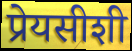
प्रेयसीशी